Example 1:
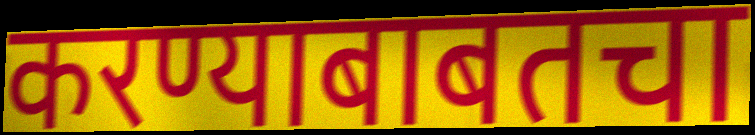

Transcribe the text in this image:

करण्याबाबतचा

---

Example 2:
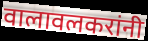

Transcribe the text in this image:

वालावलकरांनी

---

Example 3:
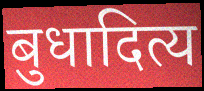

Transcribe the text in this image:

बुधादित्य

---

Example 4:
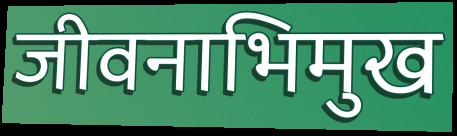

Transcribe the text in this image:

जीवनाभिमुख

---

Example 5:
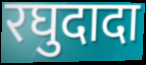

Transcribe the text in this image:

रघुदादा